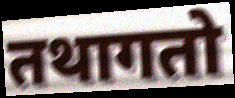
तथागतो